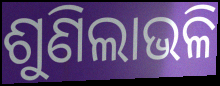
ଶୁଣିଲାଭଳି